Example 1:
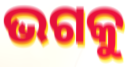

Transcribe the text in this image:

ଭଗକୁ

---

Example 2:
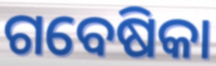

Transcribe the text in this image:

ଗବେଷିକା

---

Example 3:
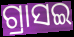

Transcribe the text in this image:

ଗ୍ରାସଇ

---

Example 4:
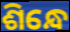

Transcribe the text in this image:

ଶିନ୍ଧେ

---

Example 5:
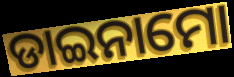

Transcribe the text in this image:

ଡାଇନାମୋ